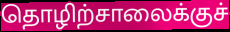
தொழிற்சாலைக்குச்